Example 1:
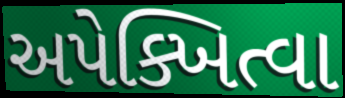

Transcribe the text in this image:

અપેક્ખિત્વા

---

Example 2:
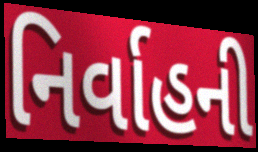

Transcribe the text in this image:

નિર્વાહની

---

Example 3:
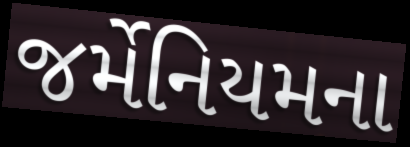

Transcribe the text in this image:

જર્મેનિયમના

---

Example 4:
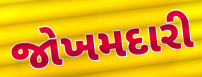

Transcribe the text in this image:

જોખમદારી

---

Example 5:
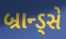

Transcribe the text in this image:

બ્રાન્ડ્સે